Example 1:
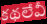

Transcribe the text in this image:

కథలేవీ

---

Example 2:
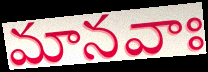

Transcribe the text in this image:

మానవాః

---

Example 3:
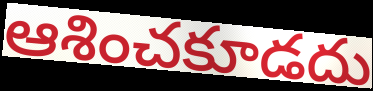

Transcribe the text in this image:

ఆశించకూడదు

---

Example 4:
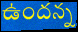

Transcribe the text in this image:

ఉందన్న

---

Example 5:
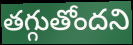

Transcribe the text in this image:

తగ్గుతోందని